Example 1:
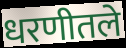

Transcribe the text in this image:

धरणीतले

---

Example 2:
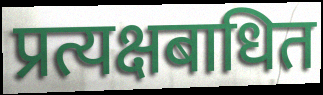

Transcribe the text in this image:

प्रत्यक्षबाधित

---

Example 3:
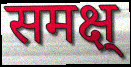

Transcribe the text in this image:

समक्ष्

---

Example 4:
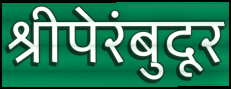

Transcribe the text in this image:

श्रीपेरंबुदूर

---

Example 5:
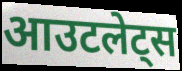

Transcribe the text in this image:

आउटलेट्स